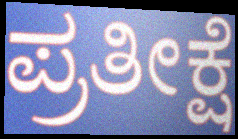
ಪ್ರತೀಕ್ಷೆ